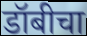
डॉबीचा